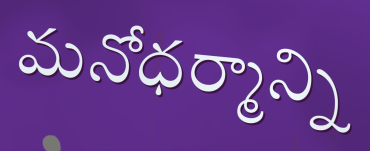
మనోధర్మాన్ని